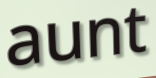
aunt